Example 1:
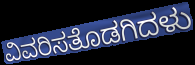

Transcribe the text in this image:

ವಿವರಿಸತೊಡಗಿದಳು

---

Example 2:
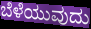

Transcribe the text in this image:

ಬೆಳೆಯುವುದು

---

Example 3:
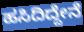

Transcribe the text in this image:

ಹಸಿದಿದ್ದೇನೆ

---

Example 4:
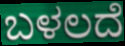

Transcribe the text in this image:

ಬಳಲದೆ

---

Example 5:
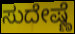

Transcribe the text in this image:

ಸುದೇಷ್ಣೆ